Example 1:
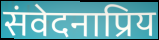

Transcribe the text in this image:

संवेदनाप्रिय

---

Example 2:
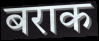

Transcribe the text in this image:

बराक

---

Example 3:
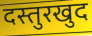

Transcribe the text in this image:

दस्तुरखुद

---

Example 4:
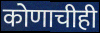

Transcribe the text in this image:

कोणाचीही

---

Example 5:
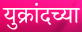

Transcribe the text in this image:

युक्रांदच्या